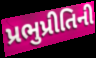
પ્રભુપ્રીતિની